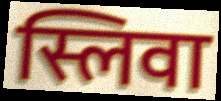
स्लिवा